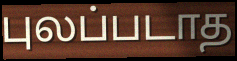
புலப்படாத